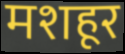
मशहूर